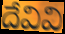
దేవివి